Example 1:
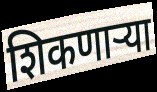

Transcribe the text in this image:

शिकणाऱ्या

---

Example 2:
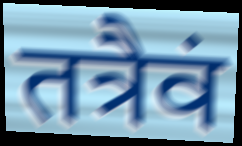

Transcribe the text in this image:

तत्रैवं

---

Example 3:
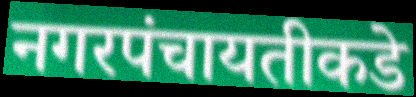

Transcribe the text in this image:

नगरपंचायतीकडे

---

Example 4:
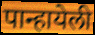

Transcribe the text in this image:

पान्हायेली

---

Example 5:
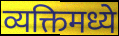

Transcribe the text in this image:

व्यक्तिमध्ये